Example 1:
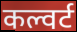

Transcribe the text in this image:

कल्वर्ट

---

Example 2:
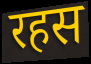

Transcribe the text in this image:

रहस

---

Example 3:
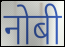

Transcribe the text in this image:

नोबी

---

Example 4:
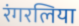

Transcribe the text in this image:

रंगरलिया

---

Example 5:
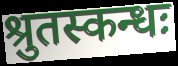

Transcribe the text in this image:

श्रुतस्कन्धः